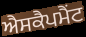
ਐਸਕੈਪਮੈਂਟ